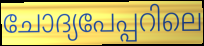
ചോദ്യപേപ്പറിലെ